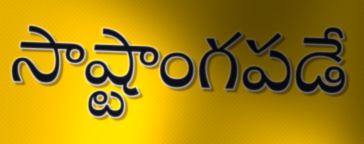
సాష్టాంగపడే